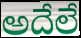
అదేలే